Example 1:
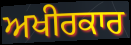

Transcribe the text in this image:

ਅਖੀਰਕਾਰ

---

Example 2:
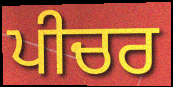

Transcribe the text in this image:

ਪੀਚਰ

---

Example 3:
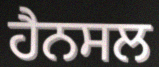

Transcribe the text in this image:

ਹੈਨਸਲ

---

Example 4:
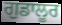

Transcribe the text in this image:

ਗੁਡਾਲੂਰ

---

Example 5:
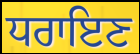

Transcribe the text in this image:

ਧਰਾਇਣ